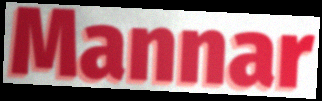
Mannar